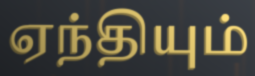
ஏந்தியும்